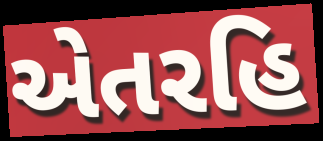
એતરહિ